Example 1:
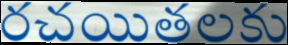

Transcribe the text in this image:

రచయితలకు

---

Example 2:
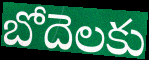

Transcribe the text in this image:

బోదెలకు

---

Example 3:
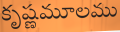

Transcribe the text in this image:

కృష్ణమూలము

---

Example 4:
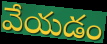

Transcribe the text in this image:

వేయడం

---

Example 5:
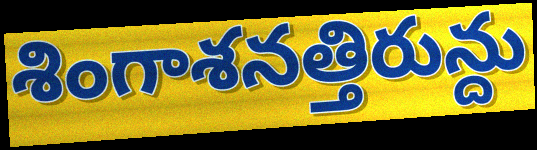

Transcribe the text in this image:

శింగాశనత్తిరున్దు